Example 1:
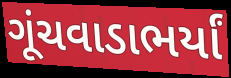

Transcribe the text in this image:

ગૂંચવાડાભર્યાં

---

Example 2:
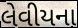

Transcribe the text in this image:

લેવીયના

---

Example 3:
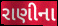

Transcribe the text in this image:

રાણીના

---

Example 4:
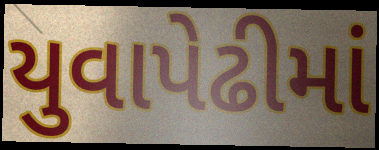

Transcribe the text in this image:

યુવાપેઢીમાં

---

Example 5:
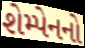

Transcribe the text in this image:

શેમ્પેનનો